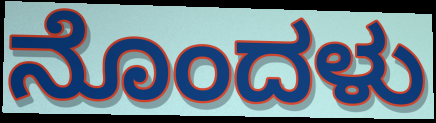
ನೊಂದಳು